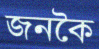
জনকৈ